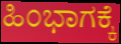
ಹಿಂಭಾಗಕ್ಕೆ